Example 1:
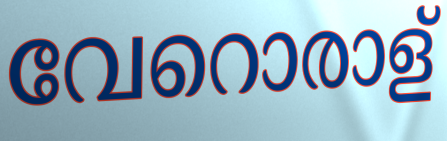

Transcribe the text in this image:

വേറൊരാള്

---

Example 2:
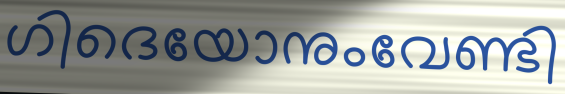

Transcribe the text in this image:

ഗിദെയോനുംവേണ്ടി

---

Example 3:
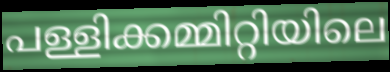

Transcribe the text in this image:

പള്ളിക്കമ്മിറ്റിയിലെ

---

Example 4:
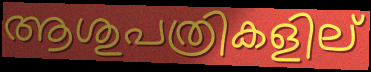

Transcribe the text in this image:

ആശുപത്രികളില്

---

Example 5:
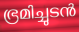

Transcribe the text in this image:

ഭ്രമിച്ചുടൻ